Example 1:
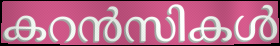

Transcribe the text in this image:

കറൻസികൾ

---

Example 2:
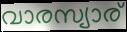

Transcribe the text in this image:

വാരസ്യാര്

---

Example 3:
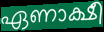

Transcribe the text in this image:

ഏണാക്ഷീ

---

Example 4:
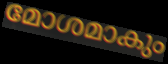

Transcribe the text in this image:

മോശമാകും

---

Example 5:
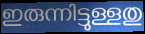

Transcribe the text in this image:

ഇരുന്നിട്ടുള്ളതു